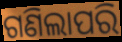
ଗଣିଲାପରି